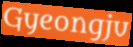
Gyeongju